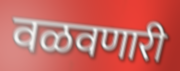
वळवणारी